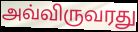
அவ்விருவரது